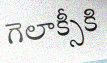
గెలాక్సీకి